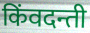
किंवदन्ती